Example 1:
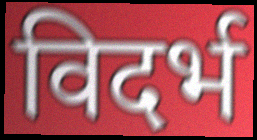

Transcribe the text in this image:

विदर्भ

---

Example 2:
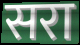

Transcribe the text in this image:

सरा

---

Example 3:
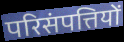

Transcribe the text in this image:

परिसंपत्तियों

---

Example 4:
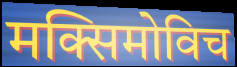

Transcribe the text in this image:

मक्सिमोविच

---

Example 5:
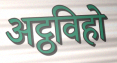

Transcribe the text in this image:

अट्ठविहो